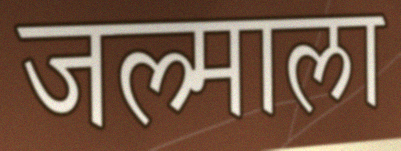
जल्माला